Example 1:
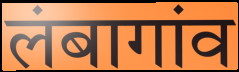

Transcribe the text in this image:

लंबागांव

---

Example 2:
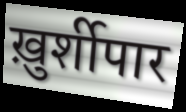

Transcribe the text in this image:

ख़ुर्शीपार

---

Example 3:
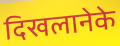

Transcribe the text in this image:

दिखलानेके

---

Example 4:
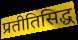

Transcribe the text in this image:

प्रतीतिसिद्ध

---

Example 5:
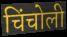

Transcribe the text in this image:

चिंचोली